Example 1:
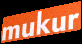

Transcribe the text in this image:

mukur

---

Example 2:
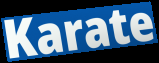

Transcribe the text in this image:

Karate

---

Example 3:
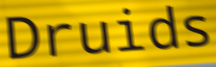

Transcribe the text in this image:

Druids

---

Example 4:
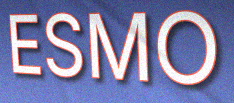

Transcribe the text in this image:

ESMO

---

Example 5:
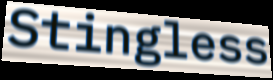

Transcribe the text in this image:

Stingless